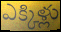
ఎక్కిళ్లు